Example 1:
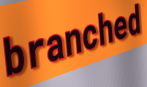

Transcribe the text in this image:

branched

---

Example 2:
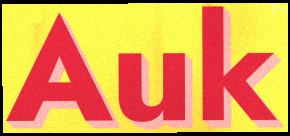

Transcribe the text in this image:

Auk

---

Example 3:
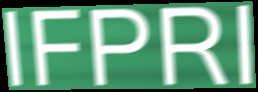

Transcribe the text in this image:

IFPRI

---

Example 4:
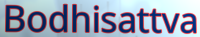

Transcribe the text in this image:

Bodhisattva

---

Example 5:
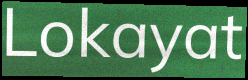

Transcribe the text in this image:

Lokayat